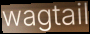
wagtail